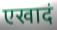
एखादं